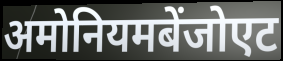
अमोनियमबेंजोएट